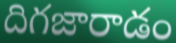
దిగజారాడం